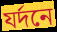
যর্দনে